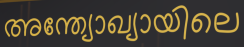
അന്ത്യോഖ്യായിലെ